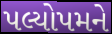
પલ્યોપમને